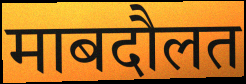
माबदौलत